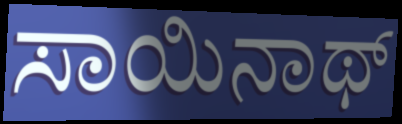
ಸಾಯಿನಾಥ್